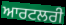
ਆਰਟਲਰੀ